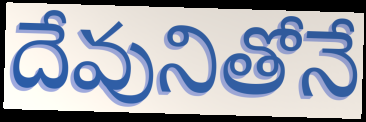
దేవునితోనే